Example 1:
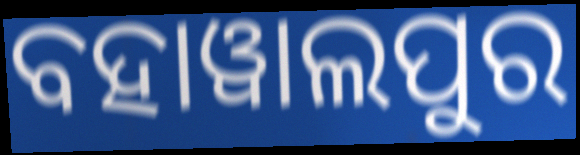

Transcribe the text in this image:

ବହାୱାଲପୁର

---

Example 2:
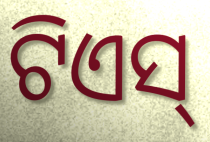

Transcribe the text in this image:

ଟିଏସ୍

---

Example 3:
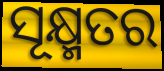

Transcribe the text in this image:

ସୂକ୍ଷ୍ମତର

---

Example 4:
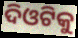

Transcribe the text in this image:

ଦିଓଟିକୁ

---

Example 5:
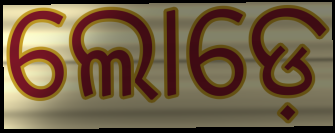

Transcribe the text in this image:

ଲୋଡ଼େ